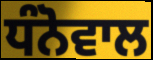
ਧੰਨੋਵਾਲ